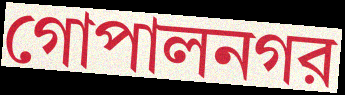
গোপালনগর